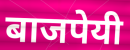
बाजपेयी